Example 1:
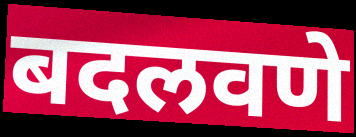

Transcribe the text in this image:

बदलवणे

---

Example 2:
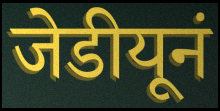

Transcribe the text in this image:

जेडीयूनं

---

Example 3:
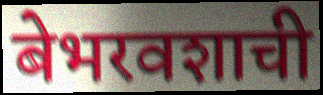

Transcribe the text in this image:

बेभरवशाची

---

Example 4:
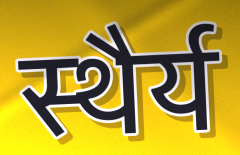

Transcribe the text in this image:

स्थैर्य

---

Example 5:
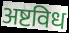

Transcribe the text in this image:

अष्टविध